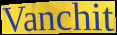
Vanchit